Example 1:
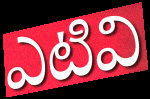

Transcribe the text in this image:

ఎటివి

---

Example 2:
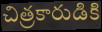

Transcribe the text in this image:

చిత్రకారుడికి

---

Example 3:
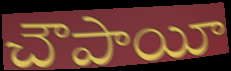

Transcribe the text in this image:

చౌపాయీ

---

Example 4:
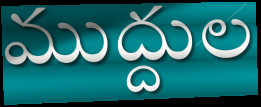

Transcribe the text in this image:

ముద్దుల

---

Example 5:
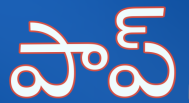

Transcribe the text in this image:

పాప్